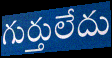
గుర్తులేదు